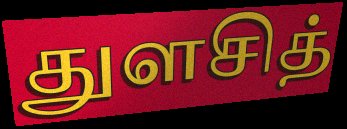
துளசித்